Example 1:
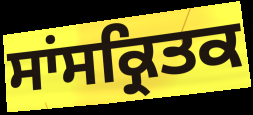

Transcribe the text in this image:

ਸਾਂਸਕ੍ਰਿਤਕ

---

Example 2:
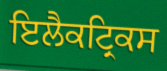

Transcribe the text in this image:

ਇਲੈਕਟ੍ਰਿਕਸ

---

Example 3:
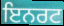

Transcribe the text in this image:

ਇਨਰਟ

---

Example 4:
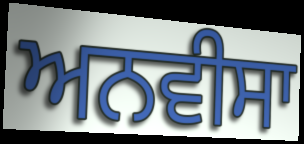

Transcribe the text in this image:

ਅਨਵੀਸਾ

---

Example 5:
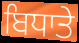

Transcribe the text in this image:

ਬਿਧਾਤੇ